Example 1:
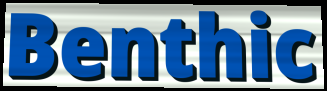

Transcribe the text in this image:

Benthic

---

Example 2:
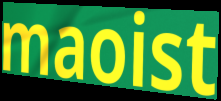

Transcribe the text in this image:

maoist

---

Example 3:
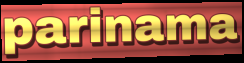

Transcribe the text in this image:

parinama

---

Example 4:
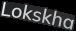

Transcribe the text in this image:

Lokskha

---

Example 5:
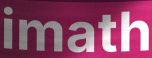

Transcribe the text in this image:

imath